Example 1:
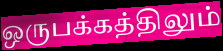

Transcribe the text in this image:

ஒருபக்கத்திலும்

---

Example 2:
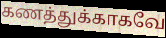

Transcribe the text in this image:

கணத்துக்காகவே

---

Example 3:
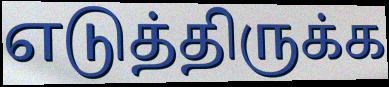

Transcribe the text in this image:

எடுத்திருக்க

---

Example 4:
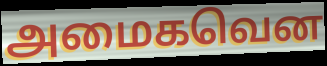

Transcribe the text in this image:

அமைகவென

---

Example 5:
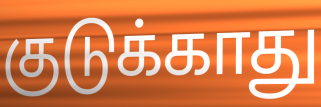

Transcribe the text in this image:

குடுக்காது